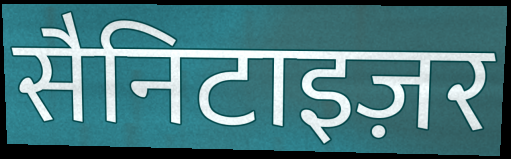
सैनिटाइज़र